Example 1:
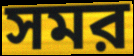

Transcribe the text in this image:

সমর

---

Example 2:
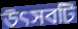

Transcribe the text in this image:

উৎসবটি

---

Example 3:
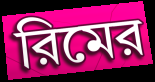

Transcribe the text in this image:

রিমের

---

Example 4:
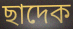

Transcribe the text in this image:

ছাদেক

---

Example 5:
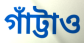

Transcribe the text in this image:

গাঁট্টাও